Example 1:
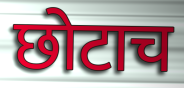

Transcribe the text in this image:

छोटाच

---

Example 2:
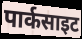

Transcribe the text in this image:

पार्कसाइट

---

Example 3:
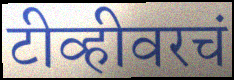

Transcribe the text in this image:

टीव्हीवरचं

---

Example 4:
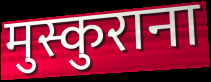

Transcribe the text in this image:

मुस्कुराना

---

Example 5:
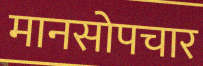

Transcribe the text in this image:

मानसोपचार